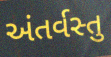
અંતર્વસ્તુ